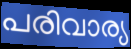
പരിവാര്യ